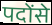
पदोंसे